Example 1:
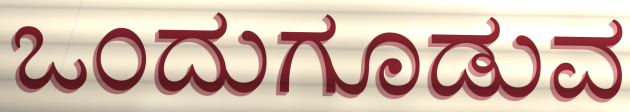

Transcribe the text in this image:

ಒಂದುಗೂಡುವ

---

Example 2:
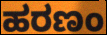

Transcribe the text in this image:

ಹರಣಂ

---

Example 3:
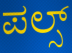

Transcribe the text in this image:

ಪಲ್ಸ್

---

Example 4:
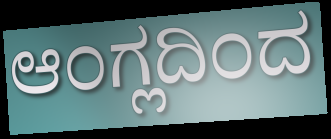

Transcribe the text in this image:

ಆಂಗ್ಲದಿಂದ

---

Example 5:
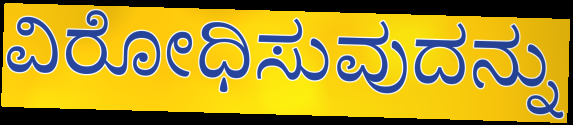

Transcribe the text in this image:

ವಿರೋಧಿಸುವುದನ್ನು